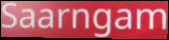
Saarngam